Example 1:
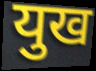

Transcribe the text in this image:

युख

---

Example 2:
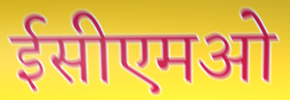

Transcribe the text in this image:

ईसीएमओ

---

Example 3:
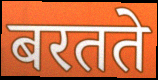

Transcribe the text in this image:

बरतते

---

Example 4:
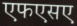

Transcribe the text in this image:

एफएसए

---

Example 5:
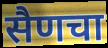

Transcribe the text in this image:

सैणचा